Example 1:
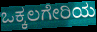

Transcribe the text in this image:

ಒಕ್ಕಲಗೇರಿಯ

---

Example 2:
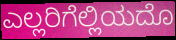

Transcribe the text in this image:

ಎಲ್ಲರಿಗೆಲ್ಲಿಯದೊ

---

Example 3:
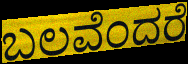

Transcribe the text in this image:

ಬಲವೆಂದರೆ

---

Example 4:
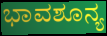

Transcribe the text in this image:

ಭಾವಶೂನ್ಯ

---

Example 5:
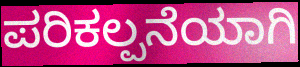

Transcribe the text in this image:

ಪರಿಕಲ್ಪನೆಯಾಗಿ